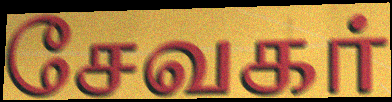
சேவகர்